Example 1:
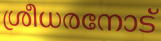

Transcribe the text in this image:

ശ്രീധരനോട്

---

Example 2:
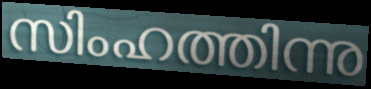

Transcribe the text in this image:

സിംഹത്തിന്നു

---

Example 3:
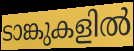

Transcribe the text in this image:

ടാങ്കുകളിൽ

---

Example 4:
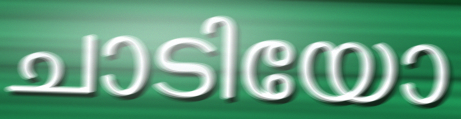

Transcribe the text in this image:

ചാടിയോ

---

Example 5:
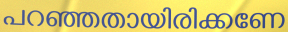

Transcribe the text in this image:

പറഞ്ഞതായിരിക്കണേ